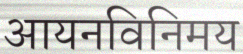
आयनविनिमय